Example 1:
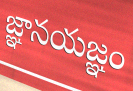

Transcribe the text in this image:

జ్ఞానయజ్ఞం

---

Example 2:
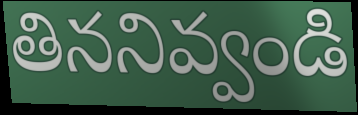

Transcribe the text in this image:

తిననివ్వండి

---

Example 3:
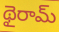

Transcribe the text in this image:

థైరామ్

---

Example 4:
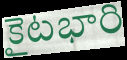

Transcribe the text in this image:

కైటభారి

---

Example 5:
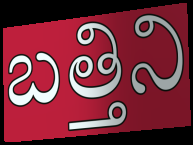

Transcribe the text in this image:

బత్తిని